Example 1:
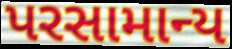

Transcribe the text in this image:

પરસામાન્ય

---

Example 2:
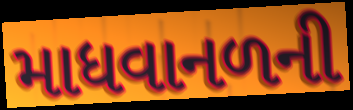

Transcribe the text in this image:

માધવાનળની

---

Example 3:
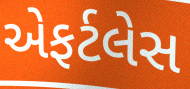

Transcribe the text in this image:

એફર્ટલેસ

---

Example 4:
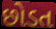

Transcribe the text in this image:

છોડત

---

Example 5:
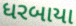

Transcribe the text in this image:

ધરબાયા